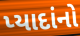
પ્યાદાંનો